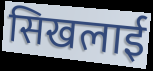
सिखलाई